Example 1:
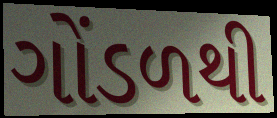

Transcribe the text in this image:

ગોંડળથી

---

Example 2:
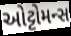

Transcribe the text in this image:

ઓટ્ટોમન્સ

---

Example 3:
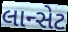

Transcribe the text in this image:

લાન્સેટ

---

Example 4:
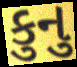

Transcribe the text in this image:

કુનુ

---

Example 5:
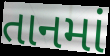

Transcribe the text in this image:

તાનમાં